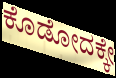
ಕೊಡೋದಕ್ಕೇ